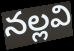
నల్లవి